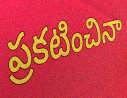
ప్రకటించినా